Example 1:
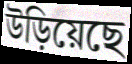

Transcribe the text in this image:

উড়িয়েছে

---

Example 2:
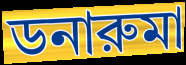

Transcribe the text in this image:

ডনারুমা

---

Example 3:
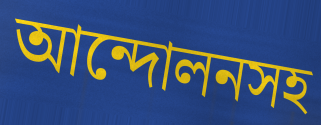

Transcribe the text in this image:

আন্দোলনসহ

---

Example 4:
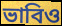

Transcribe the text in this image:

ভাবিও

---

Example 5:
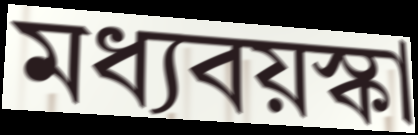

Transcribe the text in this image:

মধ্যবয়স্কা